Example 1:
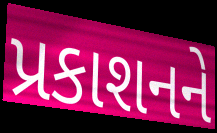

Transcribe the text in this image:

પ્રકાશનને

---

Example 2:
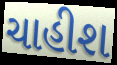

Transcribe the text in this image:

ચાહીશ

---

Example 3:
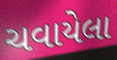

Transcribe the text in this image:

ચવાયેલા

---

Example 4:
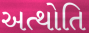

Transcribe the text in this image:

અત્થોતિ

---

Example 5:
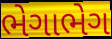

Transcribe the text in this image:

ભેગાભેગ